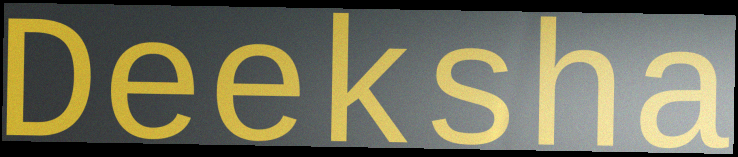
Deeksha